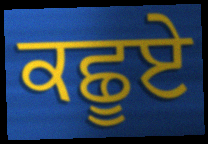
ਕਛੂਏ